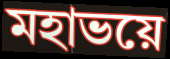
মহাভয়ে